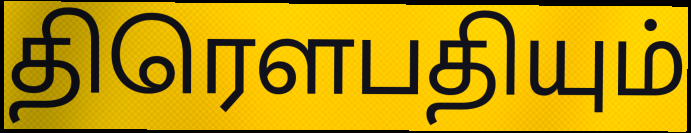
திரெளபதியும்